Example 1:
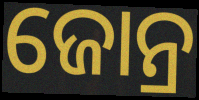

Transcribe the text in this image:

ଜୋନ୍ର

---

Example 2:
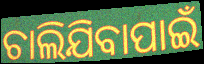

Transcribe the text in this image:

ଚାଲିଯିବାପାଇଁ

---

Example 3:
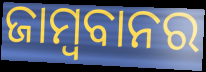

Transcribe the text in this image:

ଜାମ୍ବବାନର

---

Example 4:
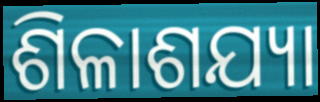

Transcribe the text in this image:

ଶିଳାଶଯ୍ୟା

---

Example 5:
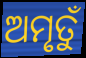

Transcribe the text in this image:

ଅମୃତୁଁ